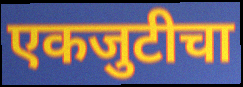
एकजुटीचा